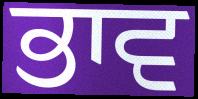
ਭਾਵ